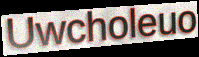
Uwcholeuo